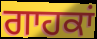
ਗਾਹਕਾਂ